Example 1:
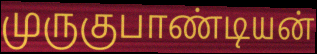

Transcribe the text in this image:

முருகுபாண்டியன்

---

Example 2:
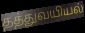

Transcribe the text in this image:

தத்துவயியல்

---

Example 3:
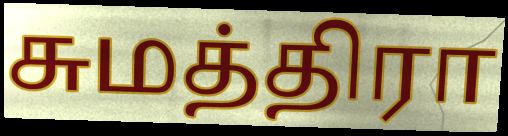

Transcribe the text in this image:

சுமத்திரா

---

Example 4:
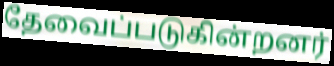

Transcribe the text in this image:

தேவைப்படுகின்றனர்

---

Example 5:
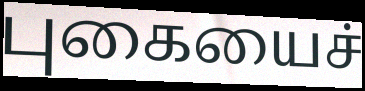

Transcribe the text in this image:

புகையைச்